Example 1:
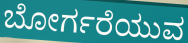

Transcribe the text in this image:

ಬೋರ್ಗರೆಯುವ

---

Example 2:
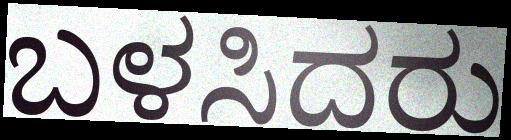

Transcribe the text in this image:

ಬಳಸಿದರು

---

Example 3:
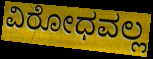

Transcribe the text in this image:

ವಿರೋಧವಲ್ಲ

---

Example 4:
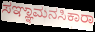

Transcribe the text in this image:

ಸಞ್ಞಾಮನಸಿಕಾರಾ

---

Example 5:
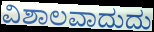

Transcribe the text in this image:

ವಿಶಾಲವಾದುದು